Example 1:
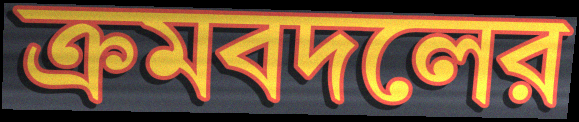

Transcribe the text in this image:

ক্রমবদলের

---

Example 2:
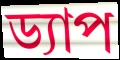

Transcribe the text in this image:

ড্যাপ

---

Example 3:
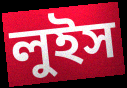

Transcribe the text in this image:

লুইস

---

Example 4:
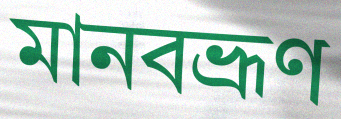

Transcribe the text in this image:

মানবভ্রূণ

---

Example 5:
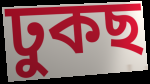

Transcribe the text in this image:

ঢুকছ